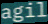
agil